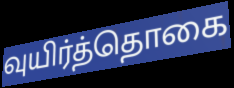
வுயிர்த்தொகை